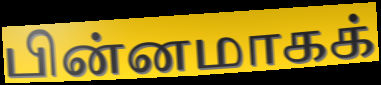
பின்னமாகக்